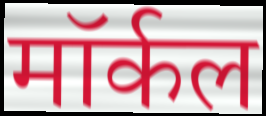
मॉर्कल